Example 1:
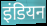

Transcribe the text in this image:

इंडियन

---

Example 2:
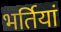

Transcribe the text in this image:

भर्तियां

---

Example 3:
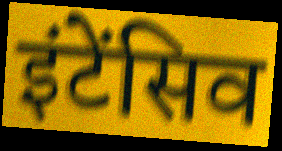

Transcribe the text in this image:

इंटेंसिव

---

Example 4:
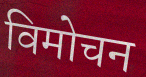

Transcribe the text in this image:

विमोचन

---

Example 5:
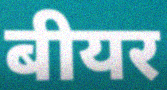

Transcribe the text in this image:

बीयर